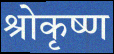
श्रोकृष्ण